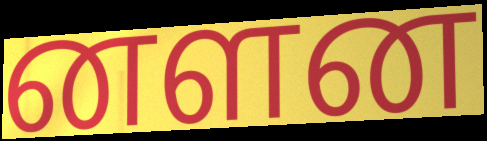
னளன